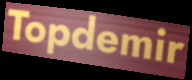
Topdemir